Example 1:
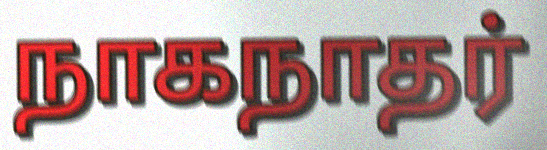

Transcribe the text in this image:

நாகநாதர்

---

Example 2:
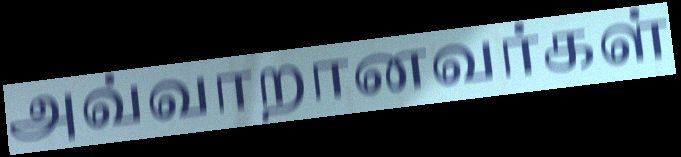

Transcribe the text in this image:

அவ்வாறானவர்கள்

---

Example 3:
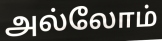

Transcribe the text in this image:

அல்லோம்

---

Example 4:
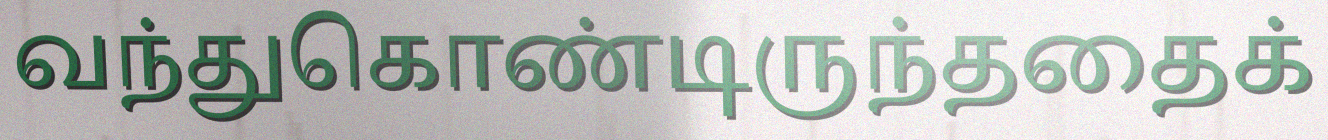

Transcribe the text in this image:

வந்துகொண்டிருந்ததைக்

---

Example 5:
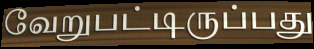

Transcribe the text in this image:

வேறுபட்டிருப்பது